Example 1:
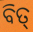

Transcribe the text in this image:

ବିତ୍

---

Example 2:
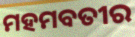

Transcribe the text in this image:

ମହମବତୀର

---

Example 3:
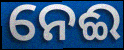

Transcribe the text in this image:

ନେଈ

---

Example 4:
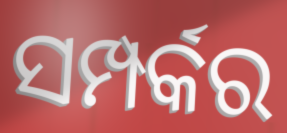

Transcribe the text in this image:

ସମ୍ପର୍କର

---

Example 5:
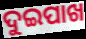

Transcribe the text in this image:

ଦୁଇପାଖ